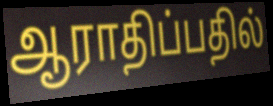
ஆராதிப்பதில்